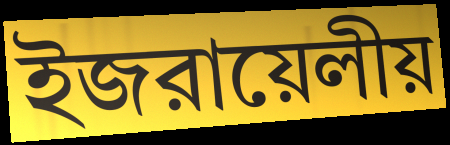
ইজরায়েলীয়